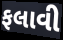
ફલાવી